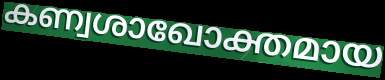
കണ്വശാഖോക്തമായ